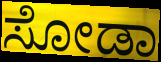
ಸೋಡಾ